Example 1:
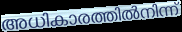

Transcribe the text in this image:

അധികാരത്തിൽനിന്ന്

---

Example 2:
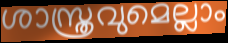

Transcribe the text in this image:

ശാസ്ത്രവുമെല്ലാം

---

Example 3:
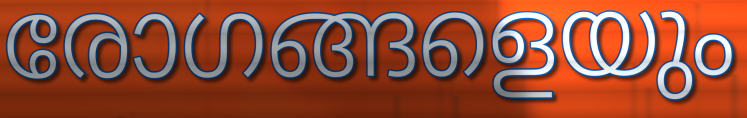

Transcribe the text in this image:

രോഗങ്ങളെയും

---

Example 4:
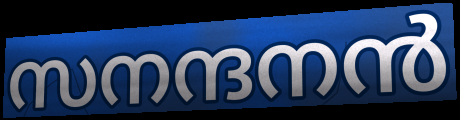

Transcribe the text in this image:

സനന്ദനൻ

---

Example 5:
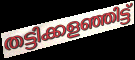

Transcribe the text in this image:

തട്ടിക്കളഞ്ഞിട്ട്